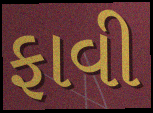
ફાવી